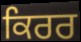
ਕਿਰਰ